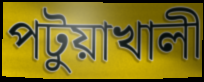
পটুয়াখালী